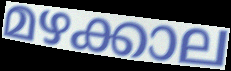
മഴക്കാല